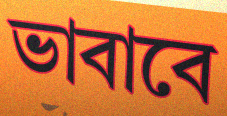
ভাবাবে